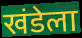
खंडेला